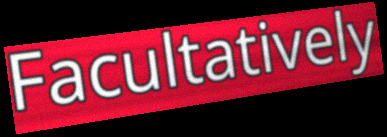
Facultatively